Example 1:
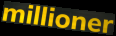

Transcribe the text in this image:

millioner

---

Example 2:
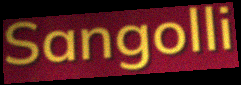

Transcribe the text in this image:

Sangolli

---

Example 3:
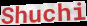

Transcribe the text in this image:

Shuchi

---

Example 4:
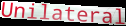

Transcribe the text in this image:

Unilateral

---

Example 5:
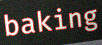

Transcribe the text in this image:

baking